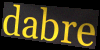
dabre